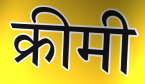
क्रीमी